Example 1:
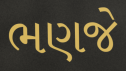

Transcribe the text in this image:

ભણજે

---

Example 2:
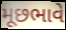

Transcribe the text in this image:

મૂછભાવે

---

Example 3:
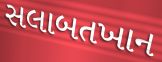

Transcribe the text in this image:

સલાબતખાન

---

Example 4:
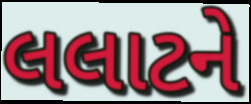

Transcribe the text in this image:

લલાટને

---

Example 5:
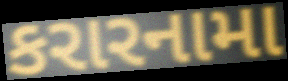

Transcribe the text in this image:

કરારનામા